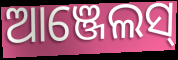
ଆଞ୍ଜେଲସ୍